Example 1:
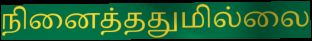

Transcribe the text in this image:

நினைத்ததுமில்லை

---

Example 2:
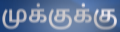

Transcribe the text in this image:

முக்குக்கு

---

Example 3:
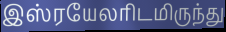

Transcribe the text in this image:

இஸ்ரயேலரிடமிருந்து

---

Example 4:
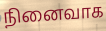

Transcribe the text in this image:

நினைவாக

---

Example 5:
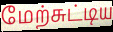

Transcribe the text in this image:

மேற்சுட்டிய